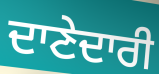
ਦਾਣੇਦਾਰੀ